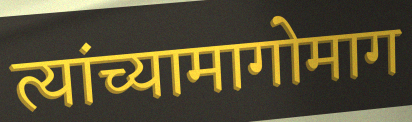
त्यांच्यामागोमाग